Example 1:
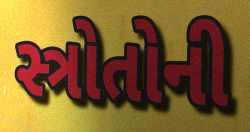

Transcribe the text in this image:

સ્ત્રોતોની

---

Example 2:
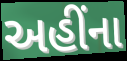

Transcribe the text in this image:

અહીંના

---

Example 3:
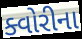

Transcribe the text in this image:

ક્વોરીના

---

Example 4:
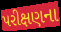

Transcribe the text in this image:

પરીક્ષણના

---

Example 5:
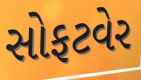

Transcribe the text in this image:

સોફટવેર